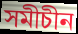
সমীচীন